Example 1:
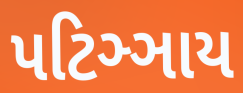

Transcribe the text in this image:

પટિઞ્ઞાય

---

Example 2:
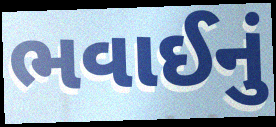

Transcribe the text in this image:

ભવાઈનું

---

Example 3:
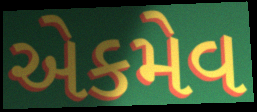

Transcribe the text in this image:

એકમેવ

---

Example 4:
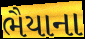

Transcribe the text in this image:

ભૈયાના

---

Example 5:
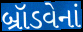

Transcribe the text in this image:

બ્રૉડવેનાં